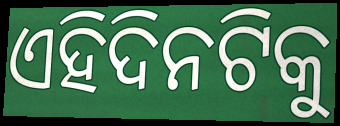
ଏହିଦିନଟିକୁ